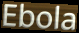
Ebola